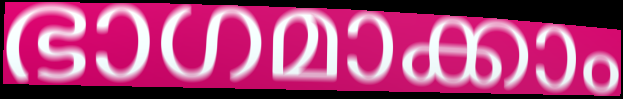
ഭാഗമാക്കാം